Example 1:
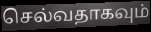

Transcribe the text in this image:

செல்வதாகவும்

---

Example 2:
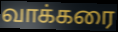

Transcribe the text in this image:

வாக்கரை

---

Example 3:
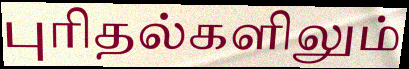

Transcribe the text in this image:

புரிதல்களிலும்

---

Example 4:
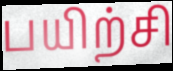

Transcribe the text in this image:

பயிற்சி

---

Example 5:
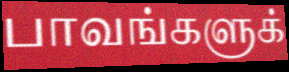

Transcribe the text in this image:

பாவங்களுக்